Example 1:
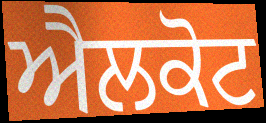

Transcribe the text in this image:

ਐਲਕੋਟ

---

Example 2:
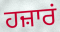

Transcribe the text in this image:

ਹਜ਼ਾਰਂ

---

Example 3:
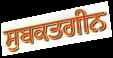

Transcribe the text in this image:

ਸੁਬਕਤਗੀਨ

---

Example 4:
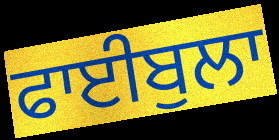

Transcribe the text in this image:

ਫਾਈਬੁਲਾ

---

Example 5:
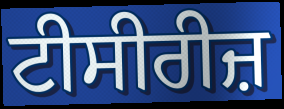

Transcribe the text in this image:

ਟੀਸੀਰੀਜ਼